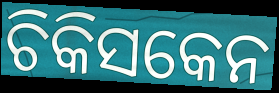
ଚିକିସକେନ